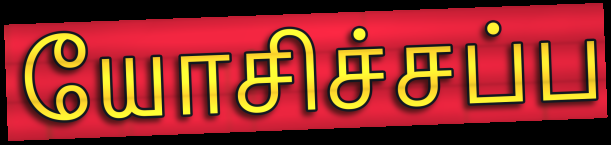
யோசிச்சப்ப